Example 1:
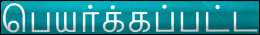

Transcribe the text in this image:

பெயர்க்கப்பட்ட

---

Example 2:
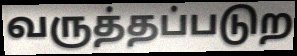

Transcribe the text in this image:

வருத்தப்படுற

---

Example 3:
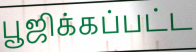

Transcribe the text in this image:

பூஜிக்கப்பட்ட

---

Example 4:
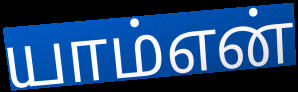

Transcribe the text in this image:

யாம்என்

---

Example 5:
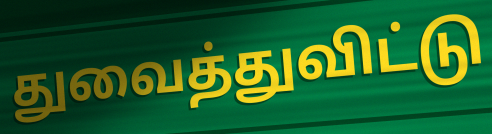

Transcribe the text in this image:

துவைத்துவிட்டு